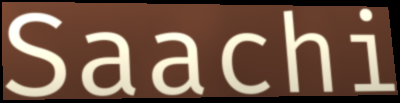
Saachi